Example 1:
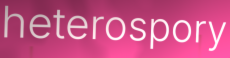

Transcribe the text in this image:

heterospory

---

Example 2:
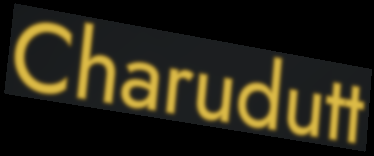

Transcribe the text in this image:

Charudutt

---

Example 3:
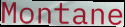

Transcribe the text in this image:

Montane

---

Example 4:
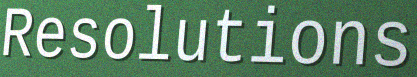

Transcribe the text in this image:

Resolutions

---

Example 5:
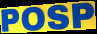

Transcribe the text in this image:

POSP